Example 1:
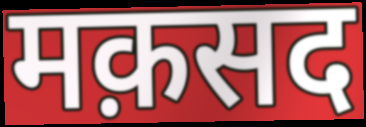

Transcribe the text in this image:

मक़सद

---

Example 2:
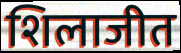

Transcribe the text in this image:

शिलाजीत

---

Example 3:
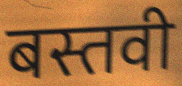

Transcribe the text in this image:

बस्तवी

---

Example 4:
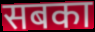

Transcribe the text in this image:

सबका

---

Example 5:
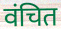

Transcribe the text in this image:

वंचित